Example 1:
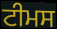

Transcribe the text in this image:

ਟੀਮਸ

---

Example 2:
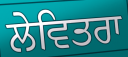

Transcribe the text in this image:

ਲੇਵਿਤਰਾ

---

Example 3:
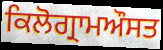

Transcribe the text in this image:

ਕਿਲੋਗ੍ਰਾਮਔਸਤ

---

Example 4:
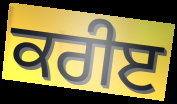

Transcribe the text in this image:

ਕਰੀੲ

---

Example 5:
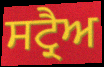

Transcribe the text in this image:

ਸਟ੍ਰੈਅ